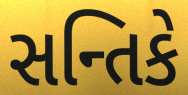
સન્તિકે